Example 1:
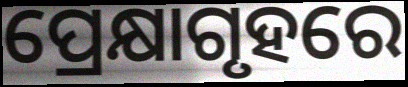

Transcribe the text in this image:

ପ୍ରେକ୍ଷାଗୃହରେ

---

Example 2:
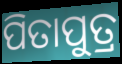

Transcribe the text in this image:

ପିତାପୁତ୍ର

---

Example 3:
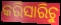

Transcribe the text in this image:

କରିସାରିଚୁ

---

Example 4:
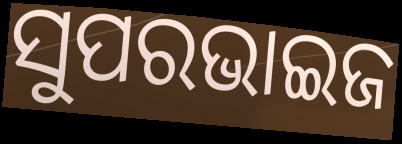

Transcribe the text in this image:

ସୁପରଭାଇଜ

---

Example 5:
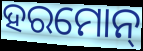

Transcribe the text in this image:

ହରମୋନ୍